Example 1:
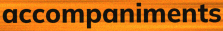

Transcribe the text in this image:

accompaniments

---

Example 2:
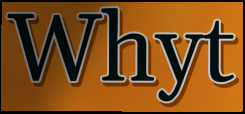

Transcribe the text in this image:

Whyt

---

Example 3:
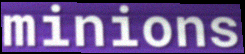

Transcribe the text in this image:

minions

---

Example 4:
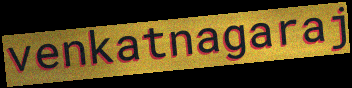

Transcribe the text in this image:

venkatnagaraj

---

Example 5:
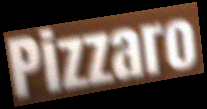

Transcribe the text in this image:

Pizzaro